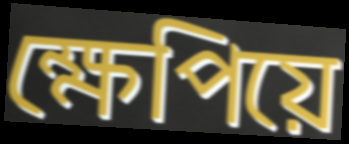
ক্ষেপিয়ে